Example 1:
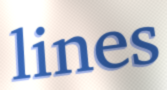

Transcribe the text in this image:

lines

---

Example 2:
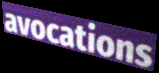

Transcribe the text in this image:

avocations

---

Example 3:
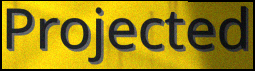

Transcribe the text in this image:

Projected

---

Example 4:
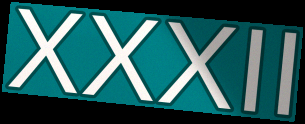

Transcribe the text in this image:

XXXII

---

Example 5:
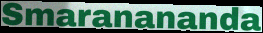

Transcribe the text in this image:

Smaranananda